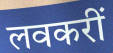
लवकरीं